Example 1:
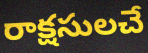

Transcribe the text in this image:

రాక్షసులచే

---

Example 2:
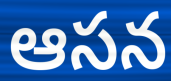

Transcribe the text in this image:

ఆసన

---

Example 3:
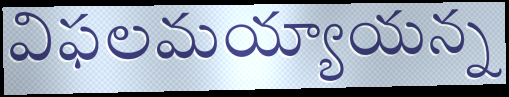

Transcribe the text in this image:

విఫలమయ్యాయన్న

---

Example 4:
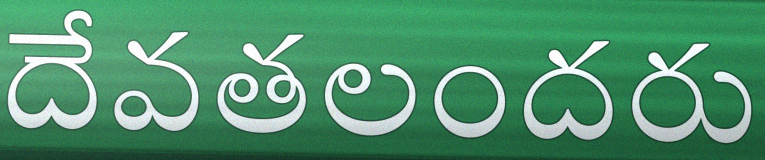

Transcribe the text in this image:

దేవతలందరు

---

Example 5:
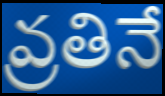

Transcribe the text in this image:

వ్రతినే